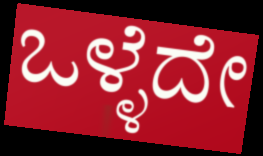
ಒಳ್ಳೆದೇ